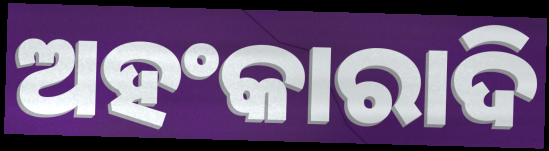
ଅହଂକାରାଦି